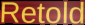
Retold